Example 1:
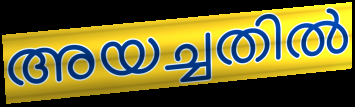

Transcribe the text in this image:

അയച്ചതിൽ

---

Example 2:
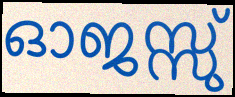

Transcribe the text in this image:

ഓജസ്സു്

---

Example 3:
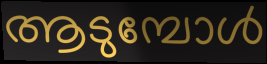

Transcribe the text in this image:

ആടുമ്പോൾ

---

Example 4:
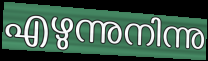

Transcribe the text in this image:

എഴുന്നുനിന്നു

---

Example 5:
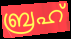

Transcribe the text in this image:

ബ്രഹ്